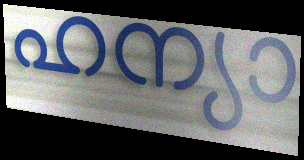
ഹന്യാ